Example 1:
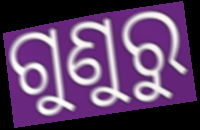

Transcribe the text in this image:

ଗୁଣୁରୁ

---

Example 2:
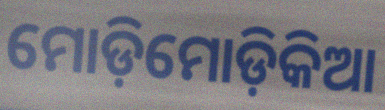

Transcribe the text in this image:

ମୋଡ଼ିମୋଡ଼ିକିଆ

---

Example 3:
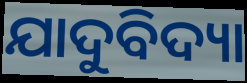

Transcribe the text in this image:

ଯାଦୁବିଦ୍ୟା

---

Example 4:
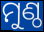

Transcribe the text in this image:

ମୁଣ୍ଠ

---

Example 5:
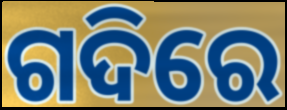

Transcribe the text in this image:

ଗଦିରେ